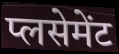
प्लसेमेंट